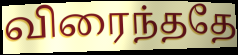
விரைந்ததே